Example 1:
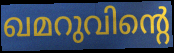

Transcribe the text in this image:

ഖമറുവിന്റെ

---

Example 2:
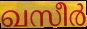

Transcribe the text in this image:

ഖസീർ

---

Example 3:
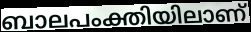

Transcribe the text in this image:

ബാലപംക്തിയിലാണ്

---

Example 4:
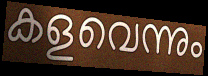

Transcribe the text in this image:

കളവെന്നും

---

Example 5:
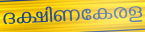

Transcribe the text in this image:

ദക്ഷിണകേരള